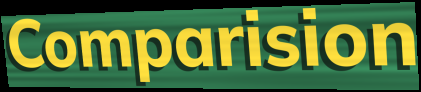
Comparision